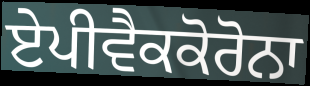
ਏਪੀਵੈਕਕੋਰੋਨਾ